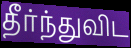
தீர்ந்துவிட